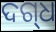
ଦଗ୍‌ଧ